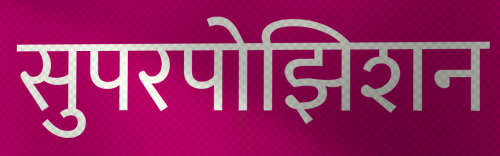
सुपरपोझिशन